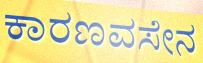
ಕಾರಣವಸೇನ